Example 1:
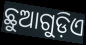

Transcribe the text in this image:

ଛୁଆଗୁଡ଼ିଏ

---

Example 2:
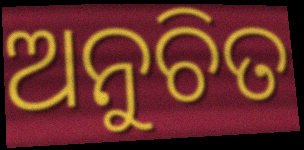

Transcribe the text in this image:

ଅନୁଚିତ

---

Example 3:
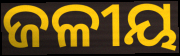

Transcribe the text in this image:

ଜଳୀୟ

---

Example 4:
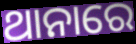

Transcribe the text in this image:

ଥାନାରେ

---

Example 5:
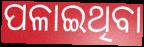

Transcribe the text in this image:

ପଳାଇଥିବା